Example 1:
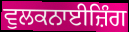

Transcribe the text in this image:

ਵੁਲਕਨਾਈਜ਼ਿੰਗ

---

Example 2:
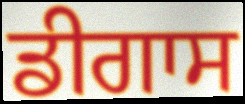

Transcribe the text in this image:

ਡੀਗਾਸ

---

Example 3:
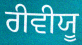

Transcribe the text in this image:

ਰੀਵੀਯੂ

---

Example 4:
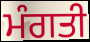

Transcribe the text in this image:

ਮੰਗਤੀ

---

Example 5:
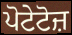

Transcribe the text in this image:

ਪੋਟੇਟੋਜ਼